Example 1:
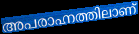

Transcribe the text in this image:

അപരാഹ്നത്തിലാണ്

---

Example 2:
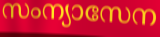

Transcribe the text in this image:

സംന്യാസേന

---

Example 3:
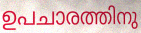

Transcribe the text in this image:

ഉപചാരത്തിനു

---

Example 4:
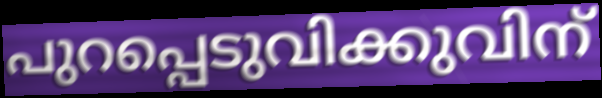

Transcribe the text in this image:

പുറപ്പെടുവിക്കുവിന്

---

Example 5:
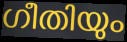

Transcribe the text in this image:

ഗീതിയും